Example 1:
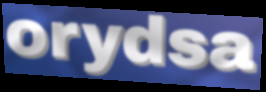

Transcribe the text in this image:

orydsa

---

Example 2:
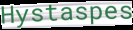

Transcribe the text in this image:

Hystaspes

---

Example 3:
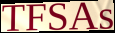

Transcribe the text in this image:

TFSAs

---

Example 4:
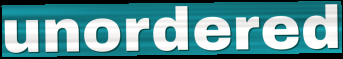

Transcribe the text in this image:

unordered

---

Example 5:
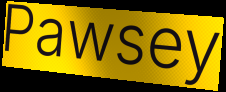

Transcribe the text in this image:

Pawsey